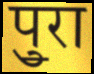
पु॒रा